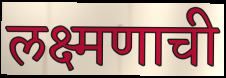
लक्ष्मणाची